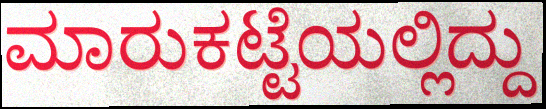
ಮಾರುಕಟ್ಟೆಯಲ್ಲಿದ್ದು